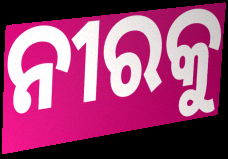
ନୀରକୁ